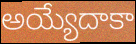
అయ్యేదాకా